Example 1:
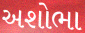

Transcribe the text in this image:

અશોભા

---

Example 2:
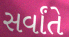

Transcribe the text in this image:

સર્વાંતે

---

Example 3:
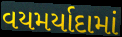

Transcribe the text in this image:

વયમર્યાદામાં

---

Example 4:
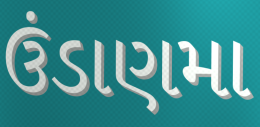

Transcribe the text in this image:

ઉંડાણમા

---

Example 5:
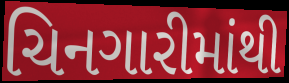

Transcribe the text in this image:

ચિનગારીમાંથી